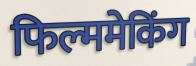
फिल्‍ममेकिंग